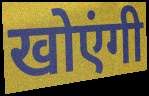
खोएंगी